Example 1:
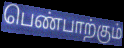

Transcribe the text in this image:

பெண்பாற்கும்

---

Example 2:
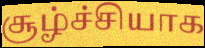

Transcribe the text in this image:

சூழ்ச்சியாக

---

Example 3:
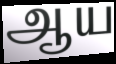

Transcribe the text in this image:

ஆய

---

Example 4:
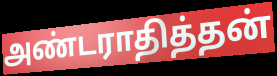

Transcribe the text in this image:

அண்டராதித்தன்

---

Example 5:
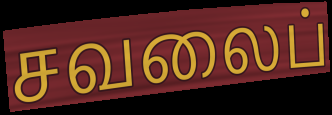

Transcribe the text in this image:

சவலைப்